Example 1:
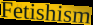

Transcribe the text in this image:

Fetishism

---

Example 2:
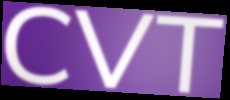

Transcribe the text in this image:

CVT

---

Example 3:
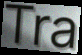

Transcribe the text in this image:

Tra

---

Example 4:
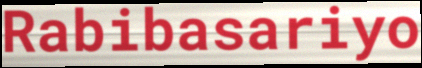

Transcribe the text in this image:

Rabibasariyo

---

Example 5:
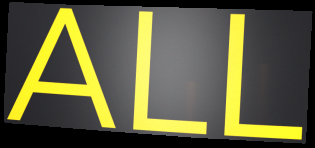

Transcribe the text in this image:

ALL